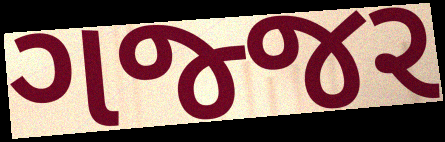
ગજ્જર